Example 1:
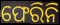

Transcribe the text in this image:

ଫେରିନି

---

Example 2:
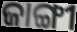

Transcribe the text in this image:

ଜାଙ୍ଗୀ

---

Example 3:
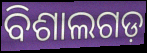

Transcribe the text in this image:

ବିଶାଲଗଡ଼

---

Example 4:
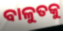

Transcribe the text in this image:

ବାଳୁତକୁ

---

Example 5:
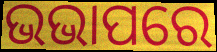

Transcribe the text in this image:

ଭଭାପରେ